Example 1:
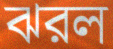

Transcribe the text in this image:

ঝরল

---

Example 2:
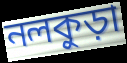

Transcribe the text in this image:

নলকুড়া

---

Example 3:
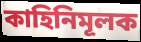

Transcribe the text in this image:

কাহিনিমূলক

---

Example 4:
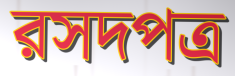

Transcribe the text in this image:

রসদপত্র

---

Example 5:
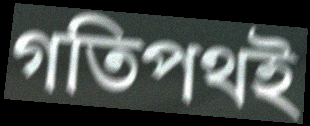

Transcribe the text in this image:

গতিপথই